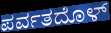
ಪರ್ವತದೊಳ್